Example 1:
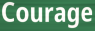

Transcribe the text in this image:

Courage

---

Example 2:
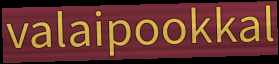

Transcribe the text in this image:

valaipookkal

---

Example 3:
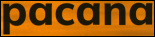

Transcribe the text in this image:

pacana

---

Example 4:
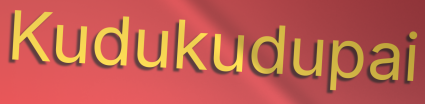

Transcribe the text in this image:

Kudukudupai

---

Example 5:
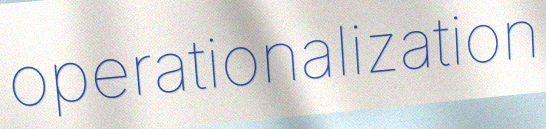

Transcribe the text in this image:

operationalization